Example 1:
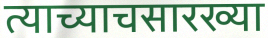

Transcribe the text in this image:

त्याच्याचसारख्या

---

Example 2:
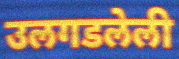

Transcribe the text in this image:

उलगडलेली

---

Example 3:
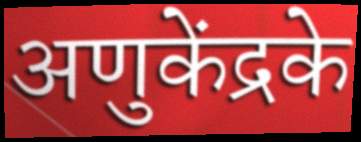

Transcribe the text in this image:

अणुकेंद्रके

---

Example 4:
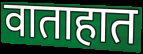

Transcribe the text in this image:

वाताहात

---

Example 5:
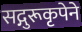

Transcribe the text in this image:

सद्गुरूकृपेने